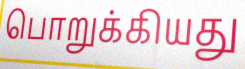
பொறுக்கியது